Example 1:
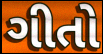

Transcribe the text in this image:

ગીતો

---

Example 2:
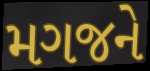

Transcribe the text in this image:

મગજને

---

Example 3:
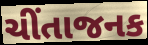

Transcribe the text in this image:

ચીંતાજનક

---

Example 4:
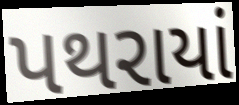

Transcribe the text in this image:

પથરાયાં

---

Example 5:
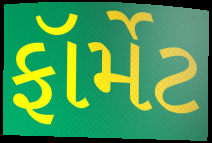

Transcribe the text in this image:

ફૉર્મેટ